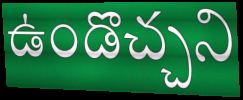
ఉండొచ్చని